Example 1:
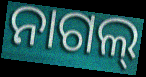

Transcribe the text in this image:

ନାଗଲ୍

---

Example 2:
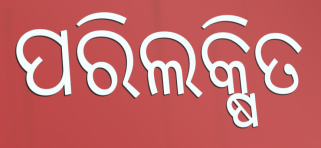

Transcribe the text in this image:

ପରିଲକ୍ଷିତ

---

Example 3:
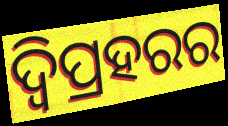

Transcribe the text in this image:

ଦ୍ବିପ୍ରହରର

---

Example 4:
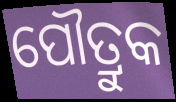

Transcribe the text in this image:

ପୌତ୍ରୁକ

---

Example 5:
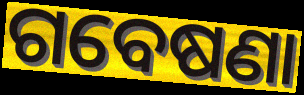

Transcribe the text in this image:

ଗବେଷଣା